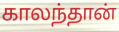
காலந்தான்